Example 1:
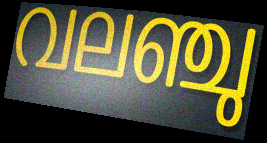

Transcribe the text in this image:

വലഞ്ചു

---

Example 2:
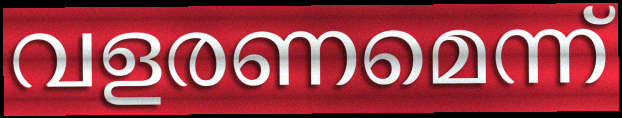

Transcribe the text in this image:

വളരണമെന്ന്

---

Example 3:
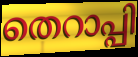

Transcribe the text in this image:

തെറാപ്പി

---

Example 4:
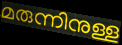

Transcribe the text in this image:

മരുന്നിനുള്ള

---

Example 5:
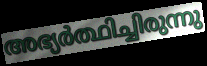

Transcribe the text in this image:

അഭ്യർത്ഥിച്ചിരുന്നു